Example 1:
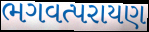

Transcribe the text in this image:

ભગવત્પરાયણ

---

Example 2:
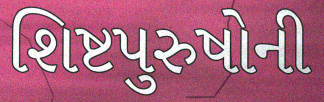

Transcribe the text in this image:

શિષ્ટપુરુષોની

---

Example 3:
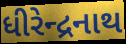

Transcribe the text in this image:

ધીરેન્દ્રનાથ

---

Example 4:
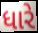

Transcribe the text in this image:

ધારે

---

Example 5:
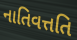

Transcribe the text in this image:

નાતિવત્તતિ